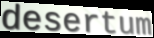
desertum